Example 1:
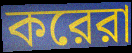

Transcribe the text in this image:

করেরা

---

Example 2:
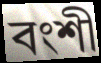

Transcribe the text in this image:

বংশী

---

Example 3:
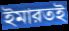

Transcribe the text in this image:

ইমারতই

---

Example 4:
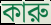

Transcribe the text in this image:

কারু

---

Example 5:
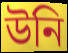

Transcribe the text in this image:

উনি